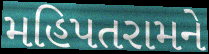
મહિપતરામને